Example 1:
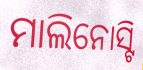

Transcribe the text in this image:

ମାଲିନୋସ୍ଟି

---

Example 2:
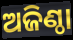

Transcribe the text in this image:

ଅଜିଣ୍ଠା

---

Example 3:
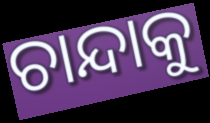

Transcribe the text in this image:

ଚାନ୍ଦାକୁ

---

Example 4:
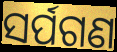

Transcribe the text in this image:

ସର୍ପଗଣ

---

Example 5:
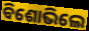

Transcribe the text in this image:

ବିଶୋଭିଲେ